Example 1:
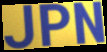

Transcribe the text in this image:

JPN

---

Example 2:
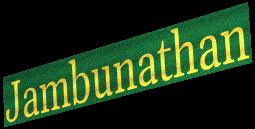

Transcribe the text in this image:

Jambunathan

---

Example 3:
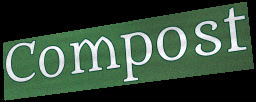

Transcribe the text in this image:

Compost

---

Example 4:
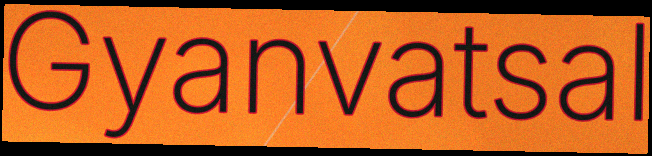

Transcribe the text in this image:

Gyanvatsal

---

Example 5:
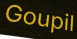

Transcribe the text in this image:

Goupil